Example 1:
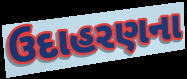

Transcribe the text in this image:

ઉદાહરણના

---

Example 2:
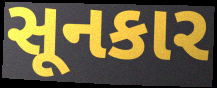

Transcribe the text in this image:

સૂનકાર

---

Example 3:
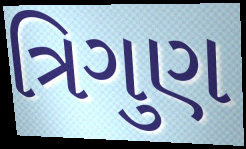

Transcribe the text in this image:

ત્રિગુણ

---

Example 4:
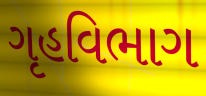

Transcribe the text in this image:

ગૃહવિભાગ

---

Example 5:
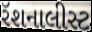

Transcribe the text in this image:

રૅશનાલીસ્ટ